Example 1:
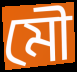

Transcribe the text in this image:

মৌ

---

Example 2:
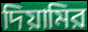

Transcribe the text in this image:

দিয়ামির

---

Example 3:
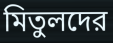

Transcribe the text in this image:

মিতুলদের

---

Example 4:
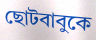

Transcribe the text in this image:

ছোটবাবুকে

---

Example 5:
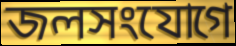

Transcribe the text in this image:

জলসংযোগে